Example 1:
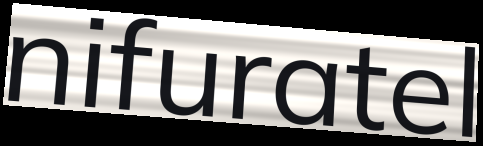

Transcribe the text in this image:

nifuratel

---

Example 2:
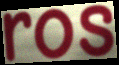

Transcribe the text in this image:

ros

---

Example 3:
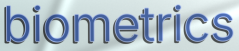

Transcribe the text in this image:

biometrics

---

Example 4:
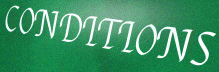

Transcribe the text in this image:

CONDITIONS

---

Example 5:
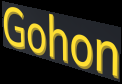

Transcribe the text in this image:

Gohon